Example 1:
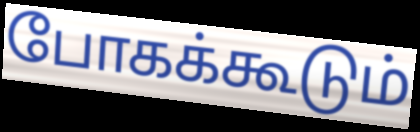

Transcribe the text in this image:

போகக்கூடும்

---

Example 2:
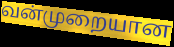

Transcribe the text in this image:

வன்முறையான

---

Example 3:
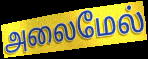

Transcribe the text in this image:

அலைமேல்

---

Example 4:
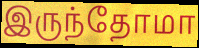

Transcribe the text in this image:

இருந்தோமா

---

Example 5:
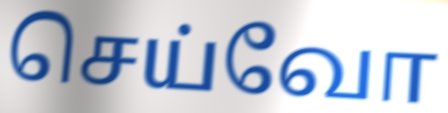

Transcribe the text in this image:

செய்வோ